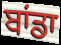
ਬਾਂਡਾ